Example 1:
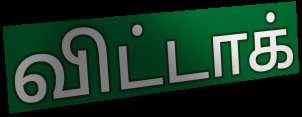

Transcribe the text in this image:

விட்டாக்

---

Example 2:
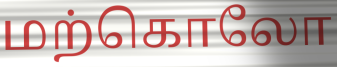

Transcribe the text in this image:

மற்கொலோ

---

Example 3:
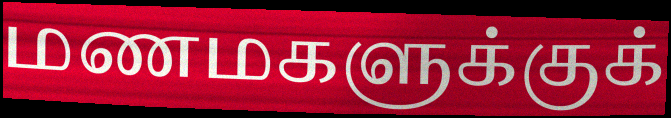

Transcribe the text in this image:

மணமகளுக்குக்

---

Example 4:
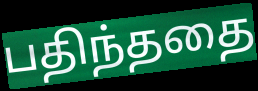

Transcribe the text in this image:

பதிந்ததை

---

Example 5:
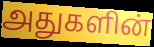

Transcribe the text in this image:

அதுகளின்